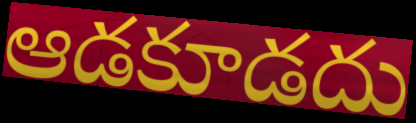
ఆడకూడదు